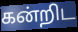
கன்றிட